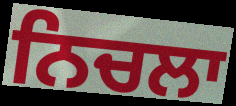
ਨਿਚਲਾ